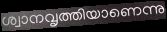
ശ്വാനവൃത്തിയാണെന്നു